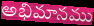
అభిమానము